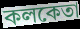
কলকেতা